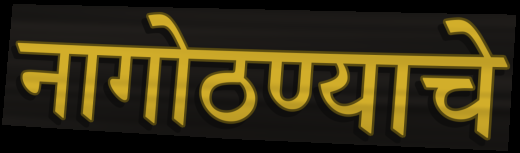
नागोठण्याचे